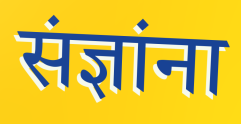
संज्ञांना